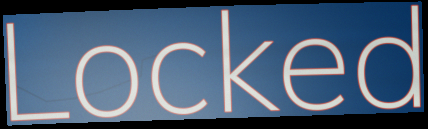
Locked